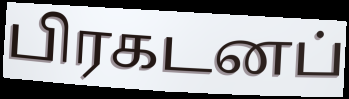
பிரகடனப்